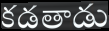
కడతాడు